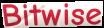
Bitwise